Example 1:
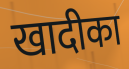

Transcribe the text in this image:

खादीका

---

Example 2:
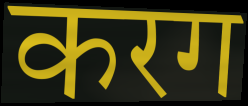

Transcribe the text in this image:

करग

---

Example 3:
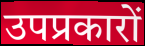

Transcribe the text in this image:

उपप्रकारों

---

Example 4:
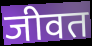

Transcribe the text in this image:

जीवत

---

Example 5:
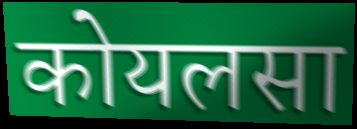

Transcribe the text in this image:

कोयलसा